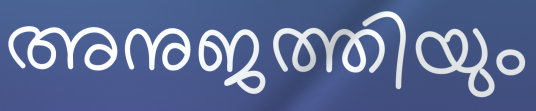
അനുജത്തിയും